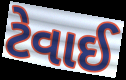
ટેવાઈ